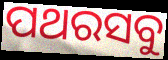
ପଥରସବୁ